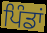
ਪਿੰਡਾਂ